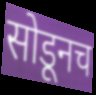
सोडूनच